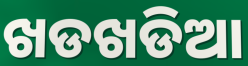
ଖଡଖଡିଆ